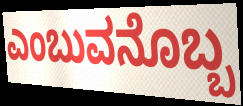
ಎಂಬುವನೊಬ್ಬ